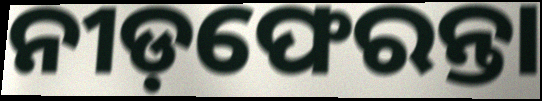
ନୀଡ଼ଫେରନ୍ତା